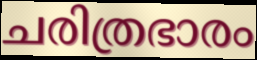
ചരിത്രഭാരം